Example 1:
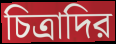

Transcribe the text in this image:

চিত্রাদির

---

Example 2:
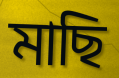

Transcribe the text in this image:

মাছি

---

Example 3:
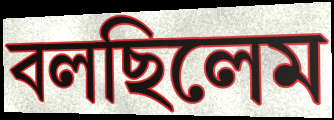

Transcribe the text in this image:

বলছিলেম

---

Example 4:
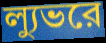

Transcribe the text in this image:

ল্যুভরে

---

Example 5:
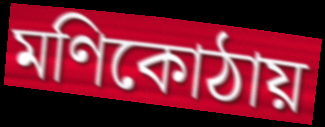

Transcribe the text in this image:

মণিকোঠায়